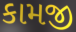
કામજી